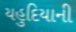
યહુદિયાની